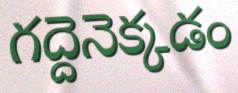
గద్దెనెక్కడం